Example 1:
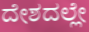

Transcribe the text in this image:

ದೇಶದಲ್ಲೇ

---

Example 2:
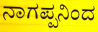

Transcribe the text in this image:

ನಾಗಪ್ಪನಿಂದ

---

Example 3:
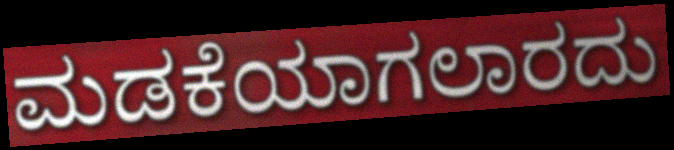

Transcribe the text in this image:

ಮಡಕೆಯಾಗಲಾರದು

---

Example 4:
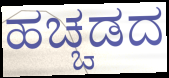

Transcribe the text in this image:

ಹಚ್ಚಡದ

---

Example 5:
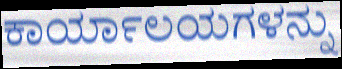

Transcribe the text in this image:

ಕಾರ್ಯಾಲಯಗಳನ್ನು